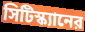
সিটিস্ক্যানের